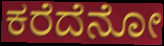
ಕರೆದೆನೋ